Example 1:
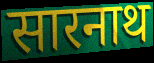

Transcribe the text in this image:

सारनाथ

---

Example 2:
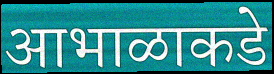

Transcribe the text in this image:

आभाळाकडे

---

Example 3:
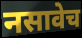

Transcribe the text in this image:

नसावेच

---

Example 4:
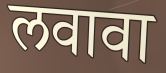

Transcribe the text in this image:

लवावा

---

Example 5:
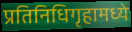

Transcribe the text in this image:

प्रतिनिधिगृहामध्ये